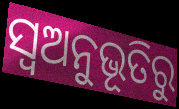
ସ୍ୱଅନୁଭୂତିରୁ